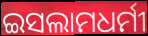
ଇସଲାମଧର୍ମୀ